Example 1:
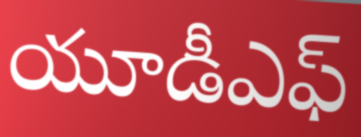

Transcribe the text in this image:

యూడీఎఫ్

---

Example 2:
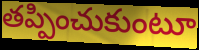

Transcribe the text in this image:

తప్పించుకుంటూ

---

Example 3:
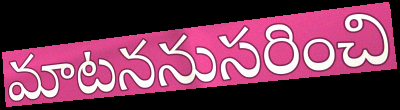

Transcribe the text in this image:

మాటననుసరించి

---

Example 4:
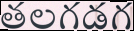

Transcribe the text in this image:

తలగడగ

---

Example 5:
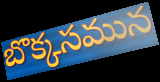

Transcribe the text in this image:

బొక్కసమున